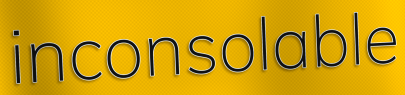
inconsolable